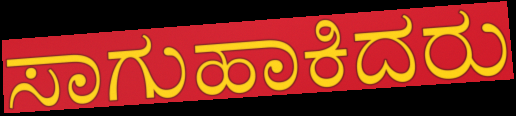
ಸಾಗುಹಾಕಿದರು